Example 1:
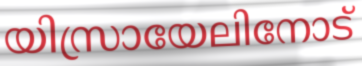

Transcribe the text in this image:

യിസ്രായേലിനോട്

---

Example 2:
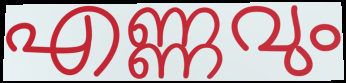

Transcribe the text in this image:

എണ്ണവും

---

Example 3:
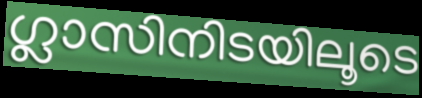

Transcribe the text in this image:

ഗ്ലാസിനിടയിലൂടെ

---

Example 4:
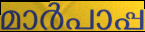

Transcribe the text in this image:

മാർപാപ്പ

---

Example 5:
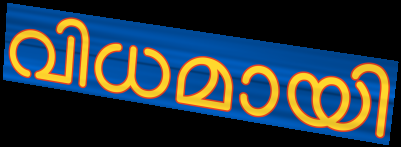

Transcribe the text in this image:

വിധമായി